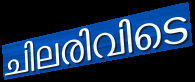
ചിലരിവിടെ